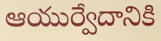
ఆయుర్వేదానికి